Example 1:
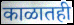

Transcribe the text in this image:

काळातही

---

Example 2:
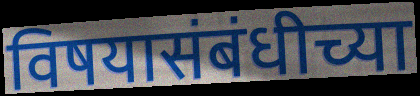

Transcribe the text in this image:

विषयासंबंधीच्या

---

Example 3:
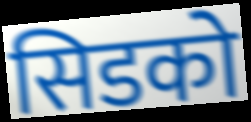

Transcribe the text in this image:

सिडको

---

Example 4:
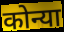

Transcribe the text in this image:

कोन्या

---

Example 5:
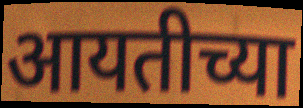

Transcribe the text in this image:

आयतीच्या